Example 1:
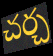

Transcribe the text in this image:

చర్చ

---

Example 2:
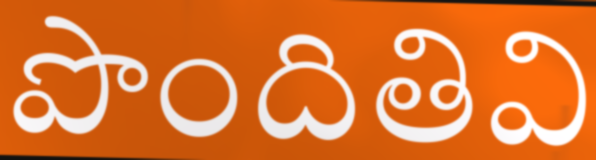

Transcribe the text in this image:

పొందితివి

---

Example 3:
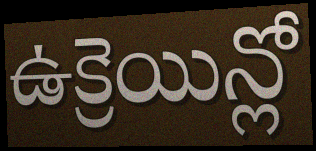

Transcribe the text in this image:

ఉక్రెయిన్లో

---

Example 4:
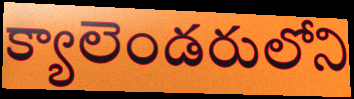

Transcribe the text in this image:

క్యాలెండరులోని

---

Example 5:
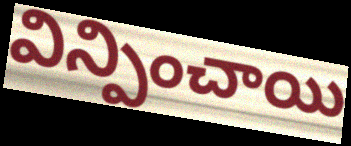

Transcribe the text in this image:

విన్పించాయి